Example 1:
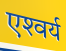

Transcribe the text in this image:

एश्‍वर्य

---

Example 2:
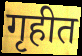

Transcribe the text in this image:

गृहीत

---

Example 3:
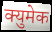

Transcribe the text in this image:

क्युमेक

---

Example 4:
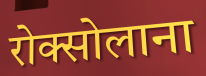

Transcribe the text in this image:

रोक्सोलाना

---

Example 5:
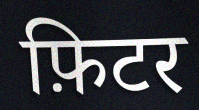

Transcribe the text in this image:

फ़िटर